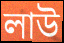
লাউ